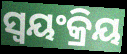
ସ୍ୱୟଂକ୍ରିୟ